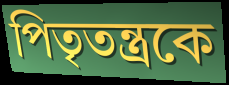
পিতৃতন্ত্রকে